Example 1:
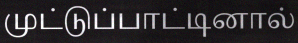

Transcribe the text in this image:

முட்டுப்பாட்டினால்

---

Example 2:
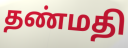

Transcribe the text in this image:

தண்மதி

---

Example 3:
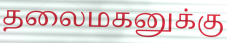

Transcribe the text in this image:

தலைமகனுக்கு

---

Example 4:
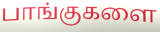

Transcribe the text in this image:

பாங்குகளை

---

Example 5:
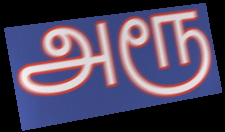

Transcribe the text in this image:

அரூ